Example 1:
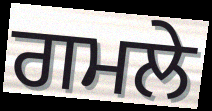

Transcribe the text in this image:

ਗਮਲੇ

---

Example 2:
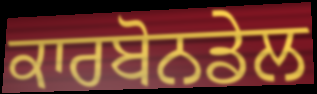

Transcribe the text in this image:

ਕਾਰਬੋਨਡੇਲ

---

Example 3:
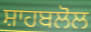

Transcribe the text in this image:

ਸ਼ਾਹਬਲੋਲ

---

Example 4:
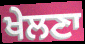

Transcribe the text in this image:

ਖੇਲਣਾ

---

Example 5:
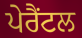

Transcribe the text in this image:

ਪੇਰੈਂਟਲ